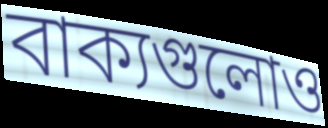
বাক্যগুলোও